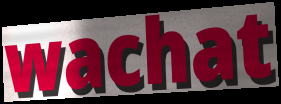
wachat